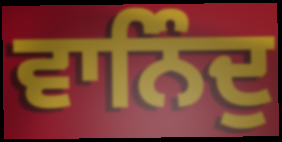
ਵਾਨਿੰਦੁ